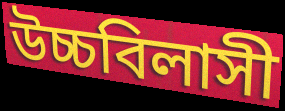
উচ্চবিলাসী